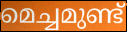
മെച്ചമുണ്ട്